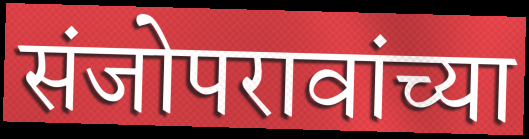
संजोपरावांच्या